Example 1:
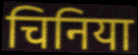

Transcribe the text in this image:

चिनिया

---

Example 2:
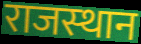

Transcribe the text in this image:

राजस्‍थान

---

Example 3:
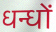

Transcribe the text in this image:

धन्धों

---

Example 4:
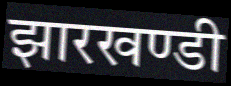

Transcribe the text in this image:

झारखण्डी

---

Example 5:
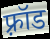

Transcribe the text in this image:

फ़्रॉड